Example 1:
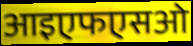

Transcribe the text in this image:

आइएफएसओ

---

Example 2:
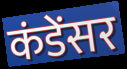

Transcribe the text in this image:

कंडेंसर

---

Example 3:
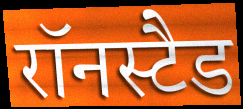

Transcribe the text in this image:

रॉनस्टैड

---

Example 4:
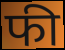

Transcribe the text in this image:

फी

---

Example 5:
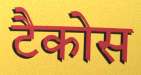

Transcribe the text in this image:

टैकोस